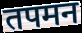
तपमन